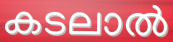
കടലാൽ